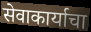
सेवाकार्याचा